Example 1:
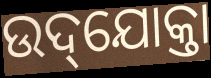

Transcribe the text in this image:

ଉଦ୍‌ଯୋକ୍ତା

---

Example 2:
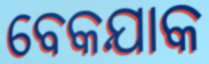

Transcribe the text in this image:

ବେକଯାକ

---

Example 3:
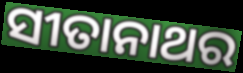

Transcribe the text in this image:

ସୀତାନାଥର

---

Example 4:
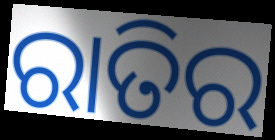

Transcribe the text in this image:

ରାତିର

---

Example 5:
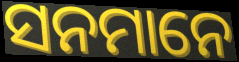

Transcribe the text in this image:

ସନମାନେ